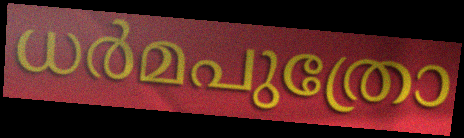
ധർമപുത്രോ